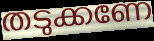
തടുക്കണേ